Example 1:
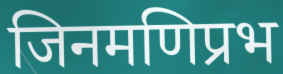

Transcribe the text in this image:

जिनमणिप्रभ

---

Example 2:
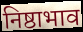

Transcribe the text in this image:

निष्ठाभाव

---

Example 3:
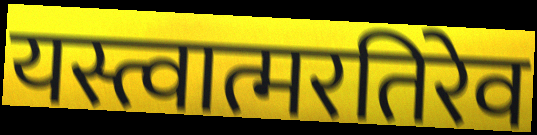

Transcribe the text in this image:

यस्त्वात्मरतिरेव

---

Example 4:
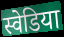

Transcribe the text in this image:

स्वेडिया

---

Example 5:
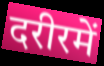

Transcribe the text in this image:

दरीरमें